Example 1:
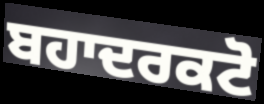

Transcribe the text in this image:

ਬਹਾਦਰਕਟੋ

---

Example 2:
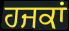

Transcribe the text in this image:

ਹਜਕਾਂ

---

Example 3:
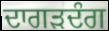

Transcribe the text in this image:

ਦਾਗੜਦੰਗ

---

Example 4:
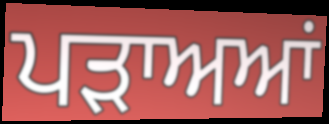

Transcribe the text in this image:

ਪੜਾਅਆਂ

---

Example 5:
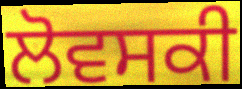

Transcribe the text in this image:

ਲੋਵਸਕੀ